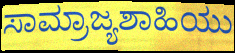
ಸಾಮ್ರಾಜ್ಯಶಾಹಿಯು